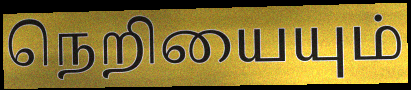
நெறியையும்